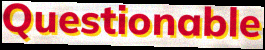
Questionable